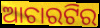
ଆଚାରଟିର